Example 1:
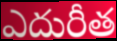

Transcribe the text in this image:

ఎదురీత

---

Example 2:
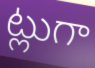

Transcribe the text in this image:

ట్లుగా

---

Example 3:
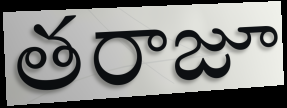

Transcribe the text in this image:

తరాజూ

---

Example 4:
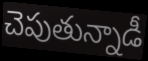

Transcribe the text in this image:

చెపుతున్నాడీ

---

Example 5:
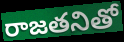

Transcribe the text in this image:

రాజతనితో